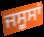
ਜਸੂਸਾਂ